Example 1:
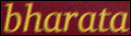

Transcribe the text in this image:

bharata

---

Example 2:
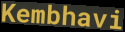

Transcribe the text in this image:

Kembhavi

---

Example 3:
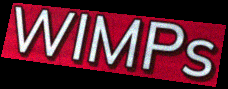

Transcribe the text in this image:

WIMPs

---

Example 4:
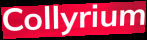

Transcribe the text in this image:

Collyrium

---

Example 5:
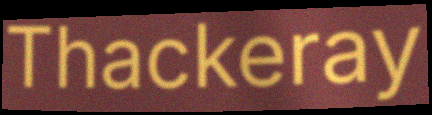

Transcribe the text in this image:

Thackeray